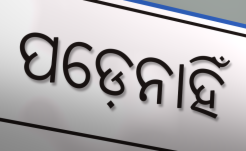
ପଡ଼େନାହିଁ